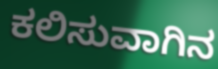
ಕಲಿಸುವಾಗಿನ